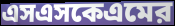
এসএসকেএমের